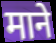
माने